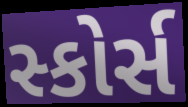
સ્કોર્સ